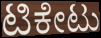
ಟಿಕೇಟು